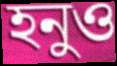
হনুও